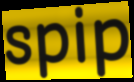
spip